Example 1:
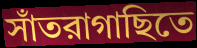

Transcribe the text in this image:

সাঁতরাগাছিতে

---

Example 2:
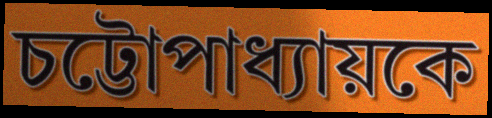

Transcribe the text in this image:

চট্টোপাধ্যায়কে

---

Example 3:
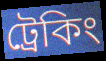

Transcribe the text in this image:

ট্রেকিং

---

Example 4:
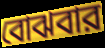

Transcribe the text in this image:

বোঝবার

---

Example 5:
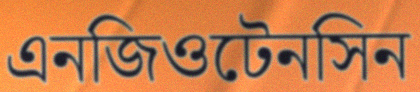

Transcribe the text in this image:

এনজিওটেনসিন